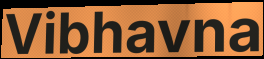
Vibhavna